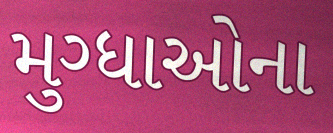
મુગ્ધાઓના